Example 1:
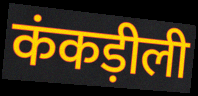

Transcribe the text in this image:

कंकड़ीली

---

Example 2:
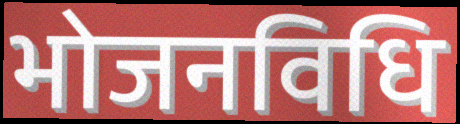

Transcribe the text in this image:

भोजनविधि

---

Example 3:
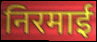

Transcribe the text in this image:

निरमाई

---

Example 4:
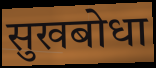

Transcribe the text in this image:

सुखबोधा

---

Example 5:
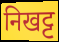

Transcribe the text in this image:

निखट्ट